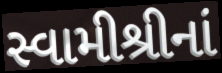
સ્વામીશ્રીનાં